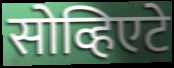
सोव्हिएटे